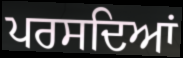
ਪਰਸਦਿਆਂ